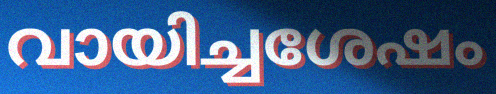
വായിച്ചശേഷം